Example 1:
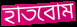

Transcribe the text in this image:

হাতবোম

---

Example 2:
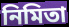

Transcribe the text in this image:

নিমিতা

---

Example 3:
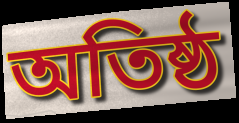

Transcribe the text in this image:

অতিষ্ঠ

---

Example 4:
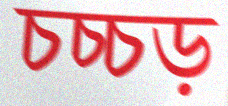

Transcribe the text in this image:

চচ্চড়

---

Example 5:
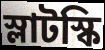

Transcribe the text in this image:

স্লাটস্কি